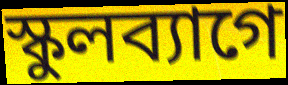
স্কুলব্যাগে